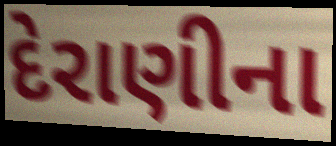
દેરાણીના